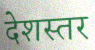
देशस्तर